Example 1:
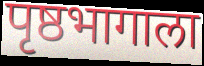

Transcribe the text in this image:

पृष्ठभागाला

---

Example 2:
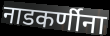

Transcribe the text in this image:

नाडकर्णीना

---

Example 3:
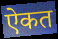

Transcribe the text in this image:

ऐकत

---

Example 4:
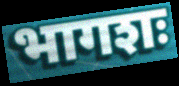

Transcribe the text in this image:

भागशः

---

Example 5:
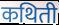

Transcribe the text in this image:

कथिती